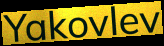
Yakovlev